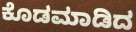
ಕೊಡಮಾಡಿದ